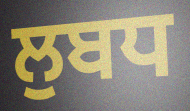
ਲੁਬਧ